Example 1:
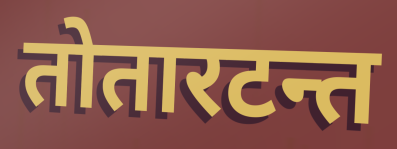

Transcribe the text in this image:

तोतारटन्त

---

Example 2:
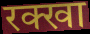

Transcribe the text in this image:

रक्‍खा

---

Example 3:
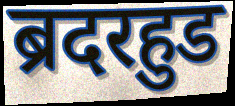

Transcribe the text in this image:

ब्रदरहुड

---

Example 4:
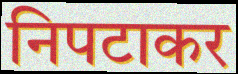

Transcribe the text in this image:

निपटाकर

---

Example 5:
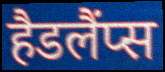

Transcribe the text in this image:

हैडलैंप्स